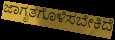
ಜಾಗೃತಗೊಳಿಸಬೇಕಿದೆ